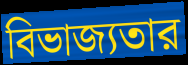
বিভাজ্যতার